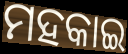
ମହକାଇ